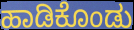
ಹಾಡಿಕೊಂಡು